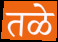
तळे